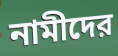
নামীদের